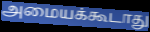
அமையக்கூடாது